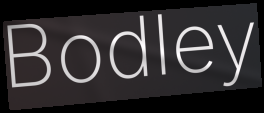
Bodley